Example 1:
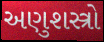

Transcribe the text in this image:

અણુશસ્ત્રો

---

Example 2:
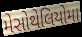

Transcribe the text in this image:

મેસોથેલિયોમા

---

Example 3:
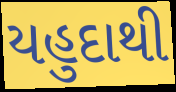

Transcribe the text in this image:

યહુદાથી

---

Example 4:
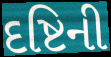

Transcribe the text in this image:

દષ્ટિની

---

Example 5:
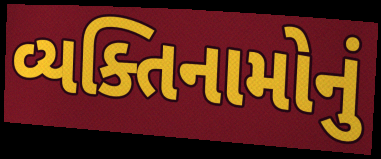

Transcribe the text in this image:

વ્યક્તિનામોનું